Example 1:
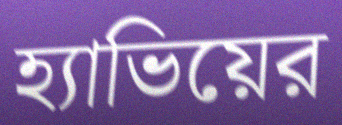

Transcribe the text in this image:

হ্যাভিয়ের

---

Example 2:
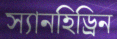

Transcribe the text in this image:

স্যানহিড্রিন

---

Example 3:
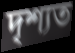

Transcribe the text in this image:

দৃশ্যত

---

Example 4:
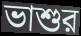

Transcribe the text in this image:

ভাশুর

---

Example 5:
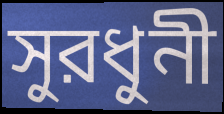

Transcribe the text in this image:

সুরধুনী